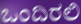
ಒಂದಿರಲಿ